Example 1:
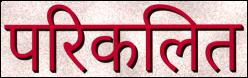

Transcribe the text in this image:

परिकलित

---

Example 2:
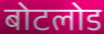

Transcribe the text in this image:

बोटलोड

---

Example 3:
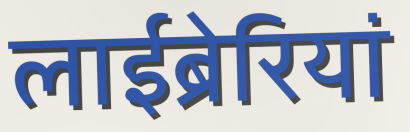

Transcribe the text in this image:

लाईब्रेरियां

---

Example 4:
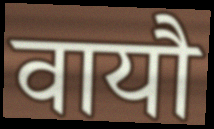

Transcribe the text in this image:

वायौ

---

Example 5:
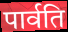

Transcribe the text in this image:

पार्वति